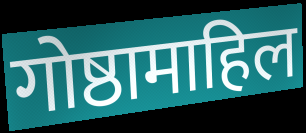
गोष्ठामाहिल